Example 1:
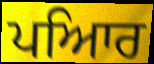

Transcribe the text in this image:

ਪਆਿਰ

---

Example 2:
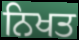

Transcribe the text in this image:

ਨਿਖਤ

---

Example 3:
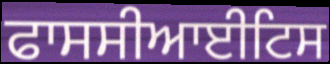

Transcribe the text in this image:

ਫਾਸਸੀਆਈਟਿਸ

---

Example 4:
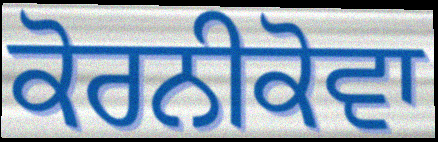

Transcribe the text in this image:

ਕੋਰਨੀਕੋਵਾ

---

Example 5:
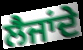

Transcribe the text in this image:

ਲੈਜਾਂਦੇ